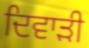
ਦਿਵਾੜੀ